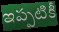
ఇప్పటికీ